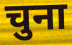
चुना